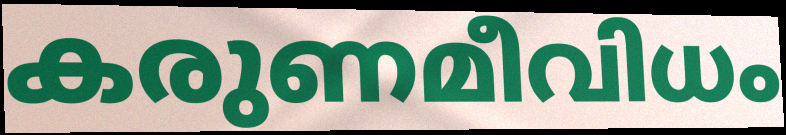
കരുണമീവിധം